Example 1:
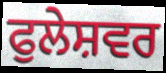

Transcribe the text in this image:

ਫੁਲੇਸ਼ਵਰ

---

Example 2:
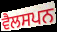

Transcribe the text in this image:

ਵੈਲਸਪਨ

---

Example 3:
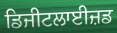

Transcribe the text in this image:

ਡਿਜੀਟਲਾਈਜ਼ਡ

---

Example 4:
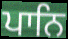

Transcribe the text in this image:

ਪਾਨਿ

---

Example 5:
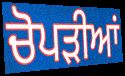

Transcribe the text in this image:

ਚੋਪੜੀਆਂ